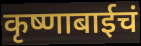
कृष्णाबाईचं